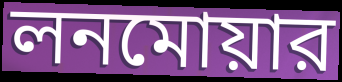
লনমোয়ার